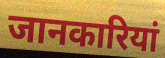
जानकारियां